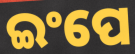
ଇଂପେ